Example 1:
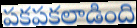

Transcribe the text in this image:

పకపకలాడింది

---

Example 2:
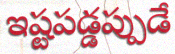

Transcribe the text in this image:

ఇష్టపడ్డప్పుడే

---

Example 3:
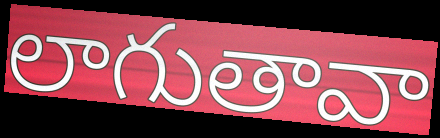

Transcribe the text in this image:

లాగుతావా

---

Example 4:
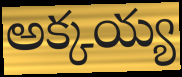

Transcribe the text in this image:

అక్కయ్య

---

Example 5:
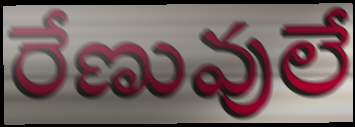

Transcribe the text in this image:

రేణువులే